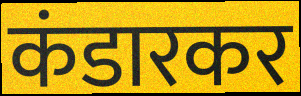
कंडारकर